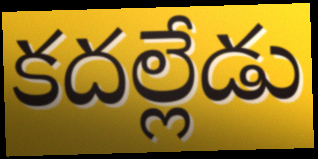
కదల్లేడు